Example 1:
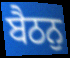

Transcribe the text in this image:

ਬੈਠਨੁ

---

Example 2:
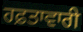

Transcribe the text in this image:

ਹਫ਼ਤਾਵਾਰੀ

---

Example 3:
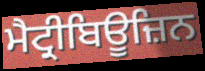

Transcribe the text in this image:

ਮੈਟ੍ਰੀਬਿਊਜ਼ਿਨ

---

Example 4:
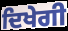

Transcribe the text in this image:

ਦਿਖੇਗੀ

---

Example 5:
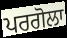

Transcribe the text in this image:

ਪਰਗੋਲਾ